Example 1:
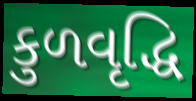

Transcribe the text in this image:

કુળવૃદ્ધિ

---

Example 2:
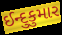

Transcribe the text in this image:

ઈન્દુકુમાર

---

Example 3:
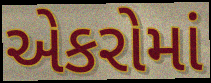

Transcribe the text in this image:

એકરોમાં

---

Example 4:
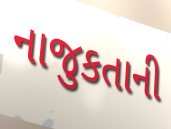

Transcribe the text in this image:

નાજુકતાની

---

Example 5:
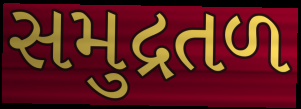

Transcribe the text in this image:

સમુદ્રતળ